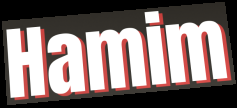
Hamim